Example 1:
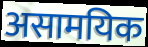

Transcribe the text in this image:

असामयिक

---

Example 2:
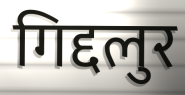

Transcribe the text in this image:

गिद्दलुर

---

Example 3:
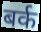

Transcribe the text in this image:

बर्क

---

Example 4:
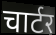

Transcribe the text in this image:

चार्टर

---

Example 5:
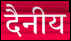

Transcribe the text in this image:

दैनीय